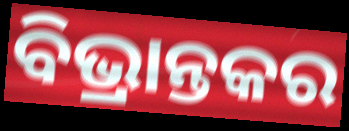
ବିଭ୍ରାନ୍ତକର